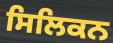
ਸਿਲਿਕਨ